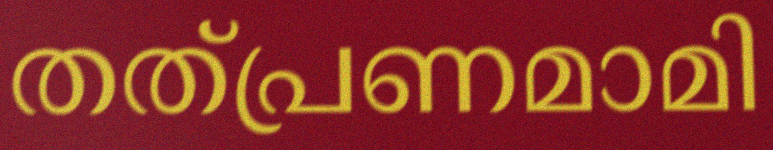
തത്പ്രണമാമി